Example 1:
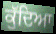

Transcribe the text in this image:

ਕੁੱਦਿਆ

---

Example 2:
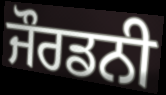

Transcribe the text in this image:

ਜੌਰਡਨੀ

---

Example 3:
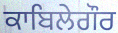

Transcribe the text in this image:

ਕਾਬਿਲੇਗੌਰ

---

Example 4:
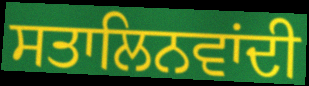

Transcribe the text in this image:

ਸਤਾਲਿਨਵਾਂਦੀ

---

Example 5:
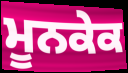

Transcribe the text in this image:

ਮੂਨਕੇਕ